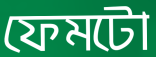
ফেমটো